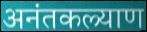
अनंतकल्याण